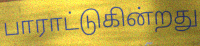
பாராட்டுகின்றது